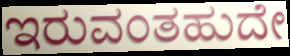
ಇರುವಂತಹುದೇ